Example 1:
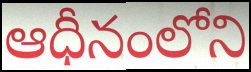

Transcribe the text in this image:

ఆధీనంలోని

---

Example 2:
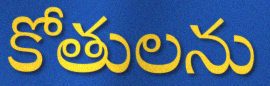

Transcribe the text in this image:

కోతులను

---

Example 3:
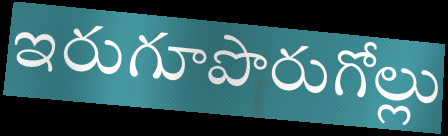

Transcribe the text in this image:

ఇరుగూపొరుగోల్లు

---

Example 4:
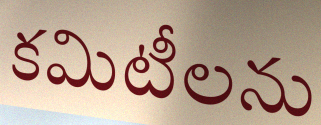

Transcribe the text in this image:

కమిటీలను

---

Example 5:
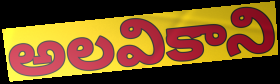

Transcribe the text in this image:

అలవికాని